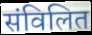
संविलित